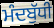
ਮੰਦਬੁੱਧੀ